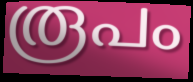
രൂപം